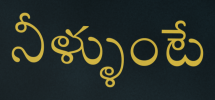
నీళ్ళుంటే